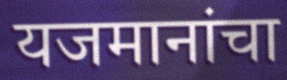
यजमानांचा